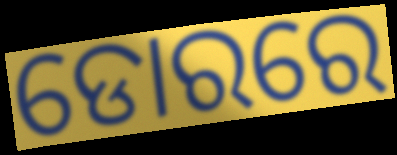
ଡୋରରେ